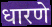
धारणे